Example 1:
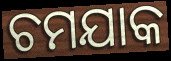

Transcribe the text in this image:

ଚମଯାକ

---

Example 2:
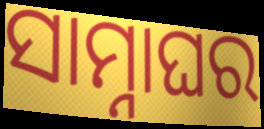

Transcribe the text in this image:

ସାମ୍ନାଘର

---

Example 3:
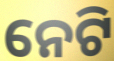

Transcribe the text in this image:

ନେଟି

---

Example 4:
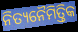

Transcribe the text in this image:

ନିତ୍ୟନୈମିତ୍ତିକ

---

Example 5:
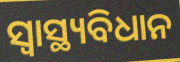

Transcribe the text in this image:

ସ୍ୱାସ୍ଥ୍ୟବିଧାନ